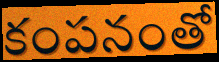
కంపనంతో